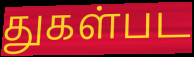
துகள்பட